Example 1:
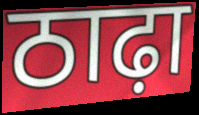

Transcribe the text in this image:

ठाढ़ा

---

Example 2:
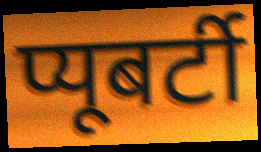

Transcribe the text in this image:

प्‍यूबर्टी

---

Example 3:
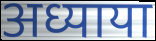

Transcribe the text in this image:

अध्याया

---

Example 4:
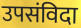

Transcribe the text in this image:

उपसंविदा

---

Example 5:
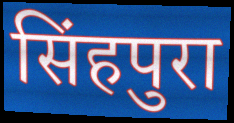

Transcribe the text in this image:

सिंहपुरा